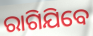
ରାଗିଯିବେ